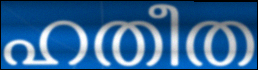
ഹതീത